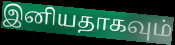
இனியதாகவும்